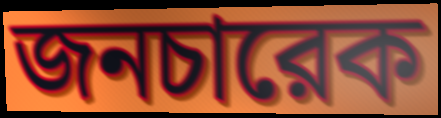
জনচারেক